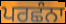
ਪਰਛੰਨਾ